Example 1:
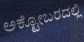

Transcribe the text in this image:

ಅಕ್ಟೋಬರದಲ್ಲಿ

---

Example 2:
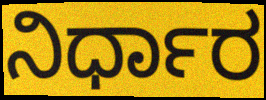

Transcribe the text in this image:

ನಿರ್ಧಾರ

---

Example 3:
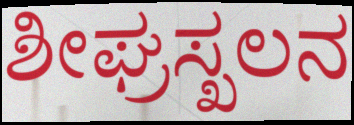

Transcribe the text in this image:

ಶೀಘ್ರಸ್ಖಲನ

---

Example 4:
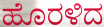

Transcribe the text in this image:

ಹೊರಳಿದ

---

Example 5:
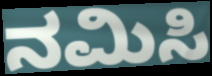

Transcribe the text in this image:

ನಮಿಸಿ